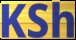
KSh